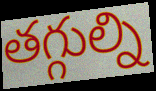
తగ్గుల్ని